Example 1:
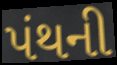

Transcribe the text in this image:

પંથની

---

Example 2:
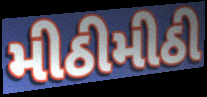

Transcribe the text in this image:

મીઠીમીઠી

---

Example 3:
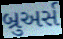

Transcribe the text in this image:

બ્રુઅર્સ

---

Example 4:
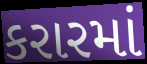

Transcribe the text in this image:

કરારમાં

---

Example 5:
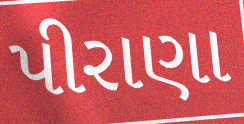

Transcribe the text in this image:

પીરાણા